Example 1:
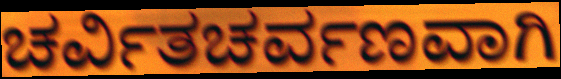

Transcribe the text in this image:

ಚರ್ವಿತಚರ್ವಣವಾಗಿ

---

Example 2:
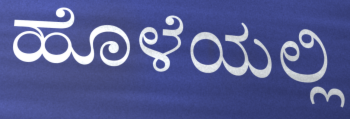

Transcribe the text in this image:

ಹೊಳೆಯಲ್ಲಿ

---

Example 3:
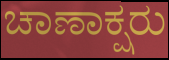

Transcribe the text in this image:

ಚಾಣಾಕ್ಷರು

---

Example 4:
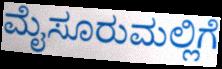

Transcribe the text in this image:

ಮೈಸೂರುಮಲ್ಲಿಗೆ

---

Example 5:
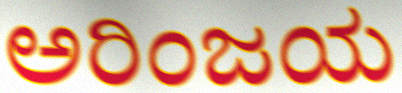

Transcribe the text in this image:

ಅರಿಂಜಯ